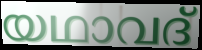
യഥാവദ്